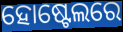
ହୋଷ୍ଟେଲରେ